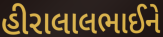
હીરાલાલભાઈને